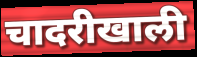
चादरीखाली